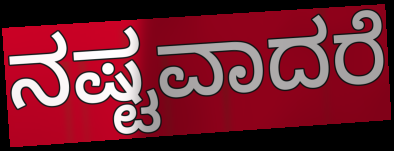
ನಷ್ಟವಾದರೆ